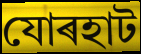
যোৰহাট